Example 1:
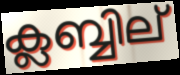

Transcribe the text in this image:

ക്ലബ്ബില്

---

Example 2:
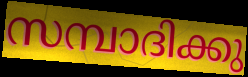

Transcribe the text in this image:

സമ്പാദിക്കു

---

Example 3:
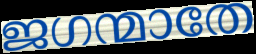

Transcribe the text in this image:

ജഗന്മാതേ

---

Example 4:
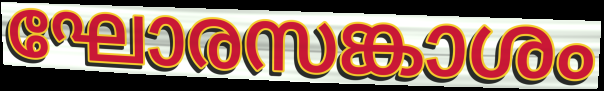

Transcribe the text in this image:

ഘോരസങ്കാശം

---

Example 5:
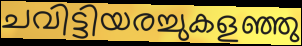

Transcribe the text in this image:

ചവിട്ടിയരച്ചുകളഞ്ഞു